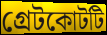
গ্রেটকোটটি